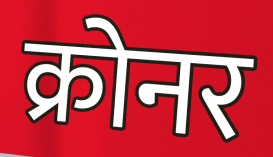
क्रोनर